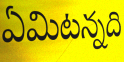
ఏమిటన్నది